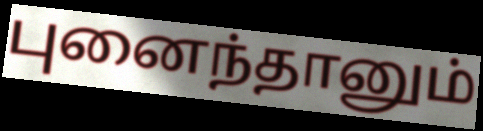
புனைந்தானும்